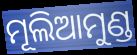
ମୂଲିଆମୁଣ୍ଡ